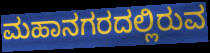
ಮಹಾನಗರದಲ್ಲಿರುವ